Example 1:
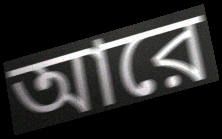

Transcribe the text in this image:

আরে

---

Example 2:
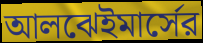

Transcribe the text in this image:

আলঝেইমার্সের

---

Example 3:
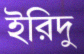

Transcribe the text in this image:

ইরিদু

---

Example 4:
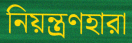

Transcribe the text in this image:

নিয়ন্ত্রণহারা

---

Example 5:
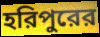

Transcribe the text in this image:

হরিপুরের